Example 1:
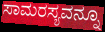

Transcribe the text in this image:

ಸಾಮರಸ್ಯವನ್ನೂ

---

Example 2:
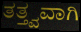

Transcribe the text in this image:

ತತ್ತ್ವವಾಗಿ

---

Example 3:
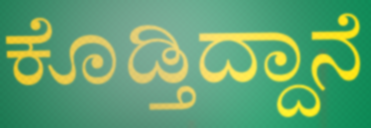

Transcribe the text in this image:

ಕೊಡ್ತಿದ್ದಾನೆ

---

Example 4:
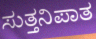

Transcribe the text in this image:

ಸುತ್ತನಿಪಾತ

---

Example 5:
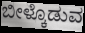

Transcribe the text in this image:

ಬೀಳ್ಕೊಡುವ